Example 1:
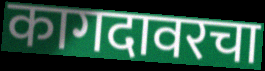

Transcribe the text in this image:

कागदावरचा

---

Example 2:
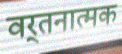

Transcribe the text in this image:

वर्तनात्मक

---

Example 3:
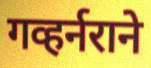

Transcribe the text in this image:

गव्हर्नराने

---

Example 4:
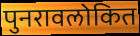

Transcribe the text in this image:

पुनरावलोकित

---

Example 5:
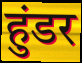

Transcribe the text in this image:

हुंडर